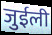
जुईली